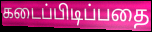
கடைப்பிடிப்பதை